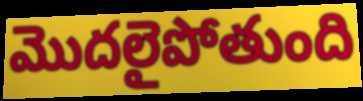
మొదలైపోతుంది